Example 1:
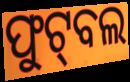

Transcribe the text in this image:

ଫୁଟ୍‌ବଲ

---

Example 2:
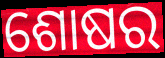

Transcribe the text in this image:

ଶୋଷର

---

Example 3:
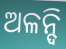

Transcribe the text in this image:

ଅଳନ୍ଦି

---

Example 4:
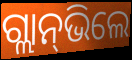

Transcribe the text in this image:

ଗ୍ଲାନ୍‌ଭିଲେ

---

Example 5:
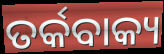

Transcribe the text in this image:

ତର୍କବାକ୍ୟ